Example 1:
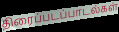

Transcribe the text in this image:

திரைப்படப்பாடல்கள்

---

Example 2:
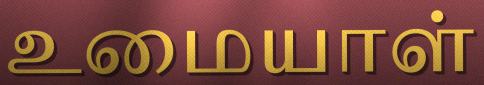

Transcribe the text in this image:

உமையாள்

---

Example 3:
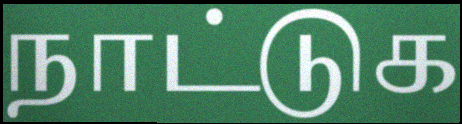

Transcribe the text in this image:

நாட்டுக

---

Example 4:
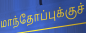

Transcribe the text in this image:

மாந்தோப்புக்குச்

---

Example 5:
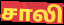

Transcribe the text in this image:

சாலி